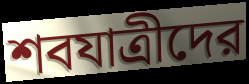
শবযাত্রীদের